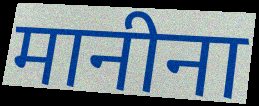
मानीना